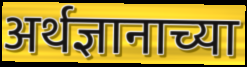
अर्थज्ञानाच्या